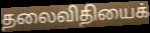
தலைவிதியைக்